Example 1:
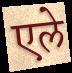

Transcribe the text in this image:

एले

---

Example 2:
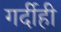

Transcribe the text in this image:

गर्दीही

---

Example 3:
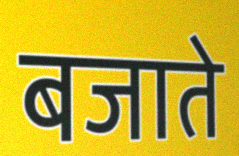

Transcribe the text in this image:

बजाते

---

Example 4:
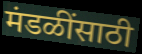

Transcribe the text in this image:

मंडळींसाठी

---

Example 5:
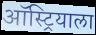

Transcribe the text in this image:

ऑस्ट्रियाला